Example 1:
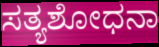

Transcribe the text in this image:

ಸತ್ಯಶೋಧನಾ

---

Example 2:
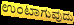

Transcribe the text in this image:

ಉಂಟಾಗುವುದು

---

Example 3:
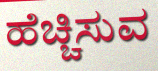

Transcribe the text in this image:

ಹೆಚ್ಚಿಸುವ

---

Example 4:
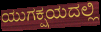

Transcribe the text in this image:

ಯುಗಕ್ಷಯದಲ್ಲಿ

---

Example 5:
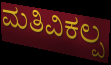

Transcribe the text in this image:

ಮತಿವಿಕಲ್ಪ